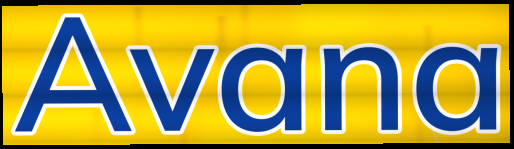
Avana